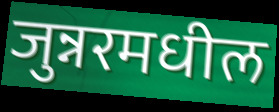
जुन्नरमधील